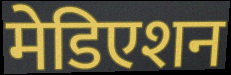
मेडिएशन